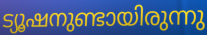
ട്യൂഷനുണ്ടായിരുന്നു